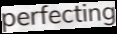
perfecting